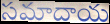
సమాదాయ